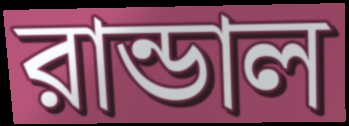
রান্ডাল